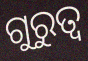
ଗୁରୁତ୍ୱ